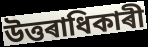
উত্তৰাধিকাৰী